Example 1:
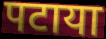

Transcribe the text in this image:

पटाया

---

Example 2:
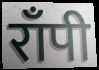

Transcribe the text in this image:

राँपी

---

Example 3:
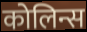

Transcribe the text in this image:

कोलिन्स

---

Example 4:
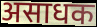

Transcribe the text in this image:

असाधक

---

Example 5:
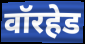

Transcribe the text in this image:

वॉरहेड